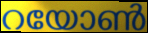
റയോൺ